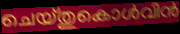
ചെയ്തുകൊൾവിൻ